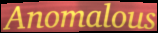
Anomalous